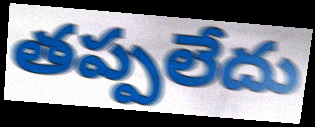
తప్పలేదు